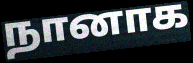
நானாக